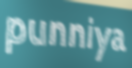
punniya